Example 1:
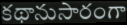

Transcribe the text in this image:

కథానుసారంగా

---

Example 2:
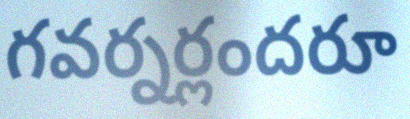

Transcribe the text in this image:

గవర్నర్లందరూ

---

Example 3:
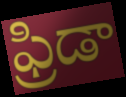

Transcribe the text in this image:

ఫ్రిడా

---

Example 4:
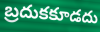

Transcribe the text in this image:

బ్రదుకకూడదు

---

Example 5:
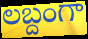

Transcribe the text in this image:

లబ్దంగా